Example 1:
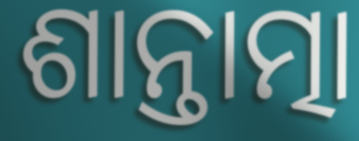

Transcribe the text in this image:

ଶାନ୍ତାତ୍ମା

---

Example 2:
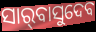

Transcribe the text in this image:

ସାର୍‌ବାସୁଦେବ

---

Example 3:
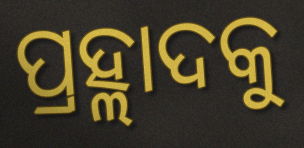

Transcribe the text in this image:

ପ୍ରହ୍ଲାଦକୁ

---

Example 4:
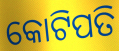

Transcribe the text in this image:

କୋଟିପତି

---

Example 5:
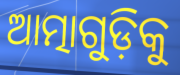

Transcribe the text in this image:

ଆତ୍ମାଗୁଡ଼ିକୁ